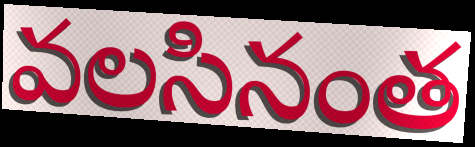
వలసినంత